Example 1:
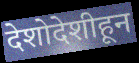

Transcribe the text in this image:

देशोदेशीहून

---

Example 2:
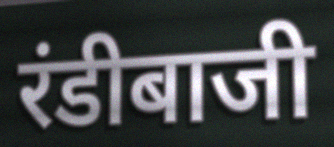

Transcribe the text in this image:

रंडीबाजी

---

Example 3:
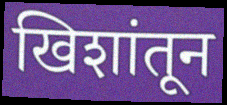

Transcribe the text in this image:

खिशांतून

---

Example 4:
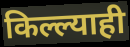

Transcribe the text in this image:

किल्ल्याही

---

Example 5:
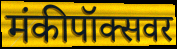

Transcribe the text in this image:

मंकीपॉक्सवर